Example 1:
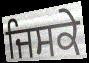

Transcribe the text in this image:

ਜਿਸਕੇ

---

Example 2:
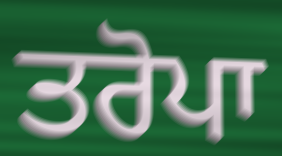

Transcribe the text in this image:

ਤਰੋਪਾ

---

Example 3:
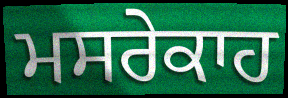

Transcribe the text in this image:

ਮਸਰੇਕਾਹ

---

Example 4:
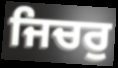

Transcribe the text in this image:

ਜਿਚਰੁ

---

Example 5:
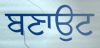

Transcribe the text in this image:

ਬਣਾਉਟ